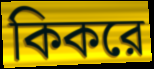
কিকরে